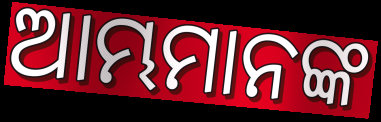
ଆମ୍ଭମାନଙ୍କ